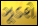
ઝૂડશે